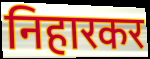
निहारकर